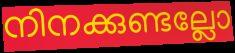
നിനക്കുണ്ടല്ലോ